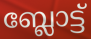
ബ്ലോട്ട്